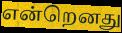
என்றெனது